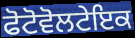
ਫੋਟੋਵੋਲਟੇਇਕ